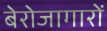
बेरोजागारों